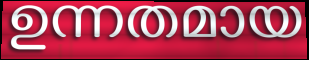
ഉന്നതമായ